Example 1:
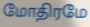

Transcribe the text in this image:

மோதிரமே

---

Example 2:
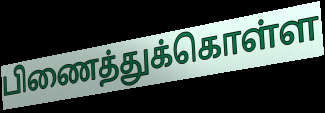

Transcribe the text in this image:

பிணைத்துக்கொள்ள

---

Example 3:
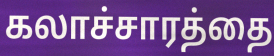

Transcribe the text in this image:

கலாச்சாரத்தை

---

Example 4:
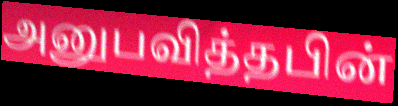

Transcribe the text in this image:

அனுபவித்தபின்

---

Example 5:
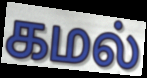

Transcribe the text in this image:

கமல்